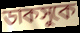
ডাকসুকে